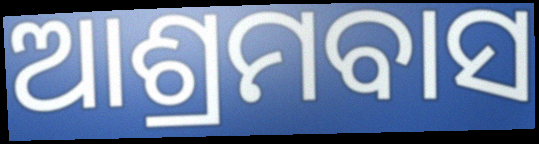
ଆଶ୍ରମବାସ